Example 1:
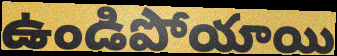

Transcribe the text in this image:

ఉండిపోయాయి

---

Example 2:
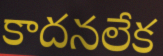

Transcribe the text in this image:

కాదనలేక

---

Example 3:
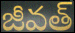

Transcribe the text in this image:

జీవత్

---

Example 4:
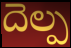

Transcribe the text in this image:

దెల్ప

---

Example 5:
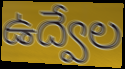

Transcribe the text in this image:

ఉద్వేల